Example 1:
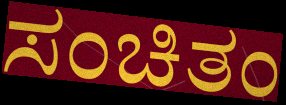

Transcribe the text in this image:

ಸಂಚಿತಂ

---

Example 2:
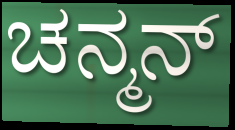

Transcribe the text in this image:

ಚನ್ಮನ್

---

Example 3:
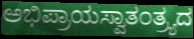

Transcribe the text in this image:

ಅಭಿಪ್ರಾಯಸ್ವಾತಂತ್ರ್ಯದ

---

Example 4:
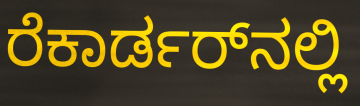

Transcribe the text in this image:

ರೆಕಾರ್ಡರ್‌ನಲ್ಲಿ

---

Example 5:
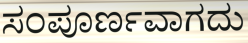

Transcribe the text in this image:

ಸಂಪೂರ್ಣವಾಗದು